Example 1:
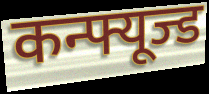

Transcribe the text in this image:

कन्फ्यूज्ड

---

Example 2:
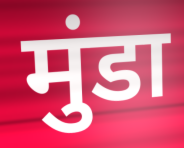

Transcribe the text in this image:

मुंडा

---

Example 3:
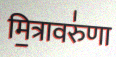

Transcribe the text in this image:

मि॒त्रावरु॑णा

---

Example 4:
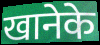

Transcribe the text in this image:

खानेके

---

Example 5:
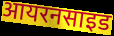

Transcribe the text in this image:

आयरनसाइड